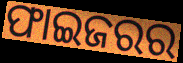
ଫାଇଜରର